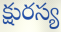
క్షురస్య